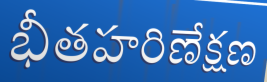
భీతహరిణేక్షణ